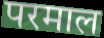
परमाल